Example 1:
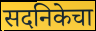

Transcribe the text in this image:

सदनिकेचा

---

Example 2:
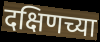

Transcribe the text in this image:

दक्षिणच्या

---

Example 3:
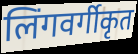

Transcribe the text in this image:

लिंगवर्गीकृत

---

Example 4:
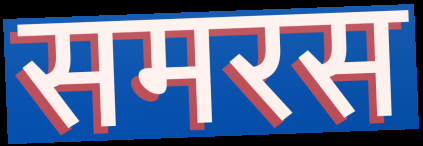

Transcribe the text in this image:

समरस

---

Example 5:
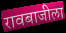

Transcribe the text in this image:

रावबाजीला